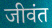
जीवंत